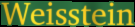
Weisstein